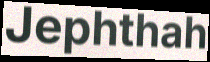
Jephthah